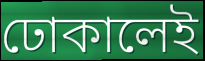
ঢোকালেই